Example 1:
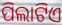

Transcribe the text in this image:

ପିଲାଟିଏ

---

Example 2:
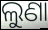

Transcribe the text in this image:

ଲୁଣା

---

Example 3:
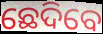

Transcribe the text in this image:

ଛେଦିବେ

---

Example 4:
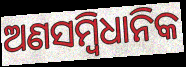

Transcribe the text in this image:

ଅଣସମ୍ବିଧାନିକ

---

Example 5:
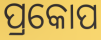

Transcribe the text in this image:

ପ୍ରକୋପ